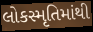
લોકસ્મૃતિમાંથી